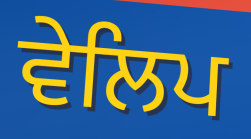
ਵੇਲਿਪ